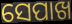
ସେପାଖ